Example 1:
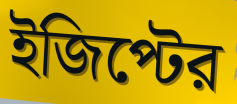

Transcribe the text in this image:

ইজিপ্টের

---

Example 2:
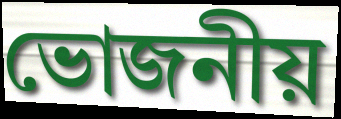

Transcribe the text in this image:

ভোজনীয়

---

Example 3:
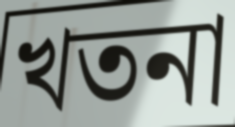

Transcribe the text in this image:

খতনা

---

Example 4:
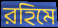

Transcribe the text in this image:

রহিমে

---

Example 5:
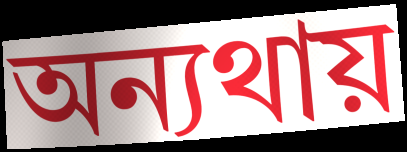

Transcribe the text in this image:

অন্যথায়